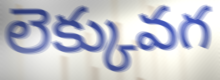
లెక్కువగ